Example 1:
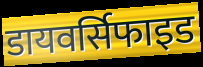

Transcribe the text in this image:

डायवर्सिफाइड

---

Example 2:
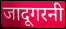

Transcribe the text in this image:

जादूगरनी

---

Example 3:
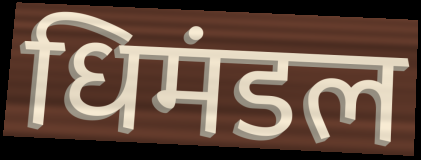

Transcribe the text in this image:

धिमंडल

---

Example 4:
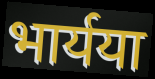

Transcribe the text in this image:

भार्यया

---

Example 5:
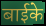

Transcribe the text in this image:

बाईके